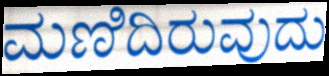
ಮಣಿದಿರುವುದು